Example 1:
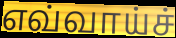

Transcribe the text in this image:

எவ்வாய்ச்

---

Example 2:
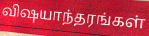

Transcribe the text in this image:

விஷயாந்தரங்கள்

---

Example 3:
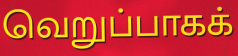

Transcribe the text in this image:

வெறுப்பாகக்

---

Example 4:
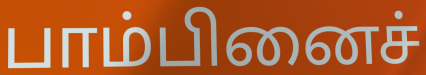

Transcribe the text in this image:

பாம்பினைச்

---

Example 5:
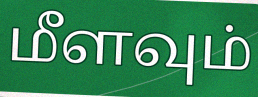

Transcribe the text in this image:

மீளவும்